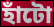
হাঁটো